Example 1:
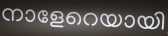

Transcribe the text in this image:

നാളേറെയായി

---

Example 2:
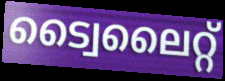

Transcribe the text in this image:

ട്വൈലൈറ്റ്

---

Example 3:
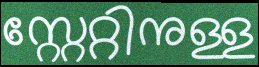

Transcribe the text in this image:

സ്റ്റേറ്റിനുള്ള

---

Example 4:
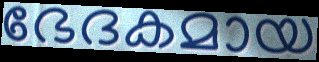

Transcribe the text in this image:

ഭേദകമായ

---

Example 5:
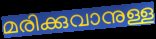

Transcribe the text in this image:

മരിക്കുവാനുള്ള